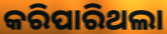
କରିପାରିଥଲା